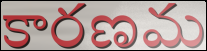
కారణమ